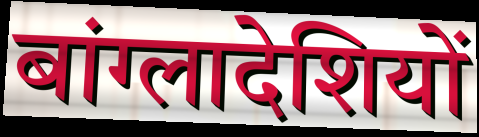
बांग्लादेशियों